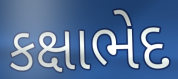
કક્ષાભેદ